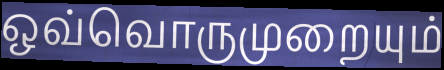
ஒவ்வொருமுறையும்